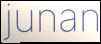
junan